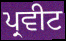
ਪ੍ਰਵੀਟ